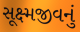
સૂક્ષ્મજીવનું